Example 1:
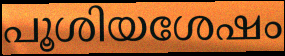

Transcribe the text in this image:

പൂശിയശേഷം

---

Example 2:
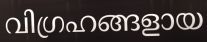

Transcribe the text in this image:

വിഗ്രഹങ്ങളായ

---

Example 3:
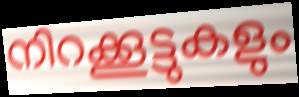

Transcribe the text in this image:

നിറക്കൂട്ടുകളും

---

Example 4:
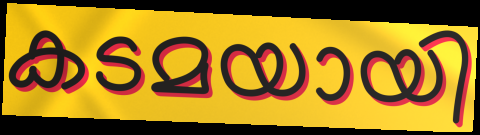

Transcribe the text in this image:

കടമയായി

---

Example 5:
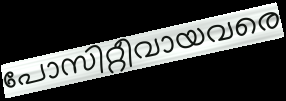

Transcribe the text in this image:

പോസിറ്റീവായവരെ